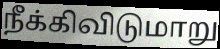
நீக்கிவிடுமாறு